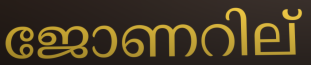
ജോണറില്